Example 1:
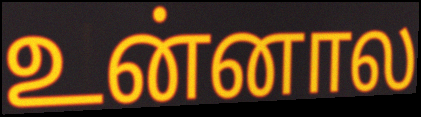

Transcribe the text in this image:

உன்னால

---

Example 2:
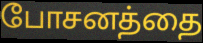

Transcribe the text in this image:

போசனத்தை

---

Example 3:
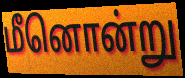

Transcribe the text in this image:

மீனொன்று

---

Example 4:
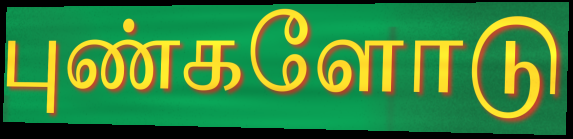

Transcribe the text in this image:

புண்களோடு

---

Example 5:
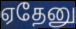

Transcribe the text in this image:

ஏதேனு